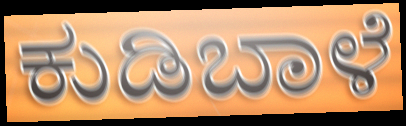
ಕುಡಿಬಾಳೆ